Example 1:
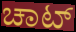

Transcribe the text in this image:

ಚಾಟ್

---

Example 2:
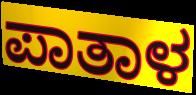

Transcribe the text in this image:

ಪಾತಾಳ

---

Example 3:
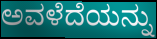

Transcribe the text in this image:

ಅವಳೆದೆಯನ್ನು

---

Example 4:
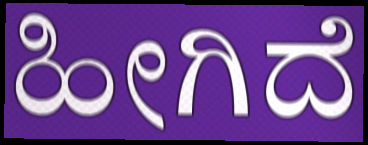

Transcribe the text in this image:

ಹೀಗಿದೆ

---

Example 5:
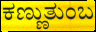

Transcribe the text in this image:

ಕಣ್ಣುತುಂಬ